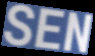
SEN